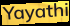
Yayathi